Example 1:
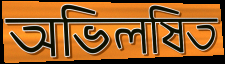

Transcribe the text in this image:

অভিলষিত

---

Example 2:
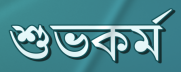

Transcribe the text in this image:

শুভকর্ম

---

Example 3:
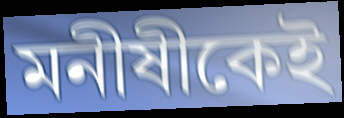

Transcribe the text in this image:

মনীষীকেই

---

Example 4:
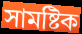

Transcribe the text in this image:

সামষ্টিক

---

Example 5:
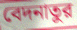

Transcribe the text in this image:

বেদনাতুর